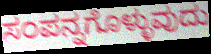
ಸಂಪನ್ನಗೊಳ್ಳುವುದು